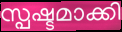
സ്പഷ്ടമാക്കി